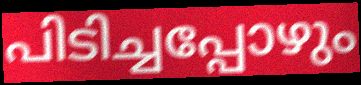
പിടിച്ചപ്പോഴും